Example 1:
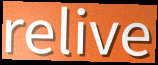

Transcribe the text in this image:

relive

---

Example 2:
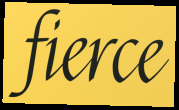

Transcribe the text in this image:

fierce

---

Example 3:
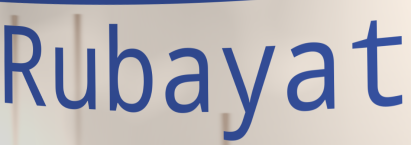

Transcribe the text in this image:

Rubayat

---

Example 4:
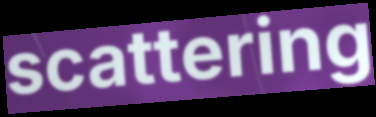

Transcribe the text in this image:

scattering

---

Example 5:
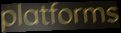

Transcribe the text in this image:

platforms